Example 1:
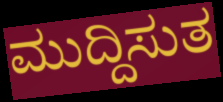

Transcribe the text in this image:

ಮುದ್ದಿಸುತ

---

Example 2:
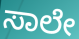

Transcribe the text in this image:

ಸಾಲೇ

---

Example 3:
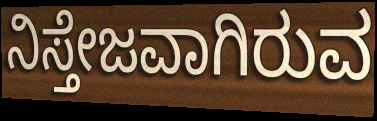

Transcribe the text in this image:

ನಿಸ್ತೇಜವಾಗಿರುವ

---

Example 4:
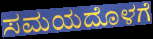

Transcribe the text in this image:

ಸಮಯದೊಳಗೆ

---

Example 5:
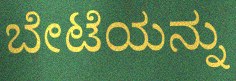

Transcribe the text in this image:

ಬೇಟೆಯನ್ನು